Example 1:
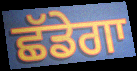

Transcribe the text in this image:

ਛੱਡੇਗਾ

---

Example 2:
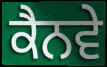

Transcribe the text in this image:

ਕੈਨਵੇ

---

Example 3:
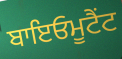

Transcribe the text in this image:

ਬਾਇਓਮੂਟੈਂਟ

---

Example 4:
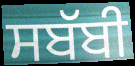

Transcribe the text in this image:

ਸਬੱਬੀ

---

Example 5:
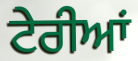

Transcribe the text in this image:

ਟੇਰੀਆਂ